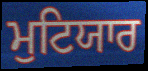
ਮੁਟਿਯਾਰ